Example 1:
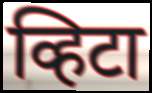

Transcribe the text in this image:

व्हिटा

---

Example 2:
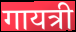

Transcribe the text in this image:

गायत्री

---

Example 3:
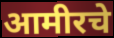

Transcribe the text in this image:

आमीरचे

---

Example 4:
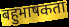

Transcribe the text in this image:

बहुभाषकता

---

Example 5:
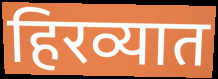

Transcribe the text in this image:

हिरव्यात